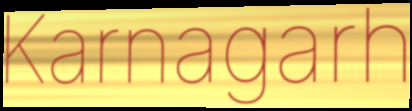
Karnagarh